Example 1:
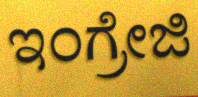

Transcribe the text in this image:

ಇಂಗ್ರೇಜಿ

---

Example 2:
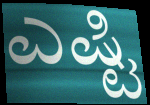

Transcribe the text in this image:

ಎಷ್ಟಿ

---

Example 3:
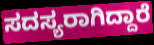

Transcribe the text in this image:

ಸದಸ್ಯರಾಗಿದ್ದಾರೆ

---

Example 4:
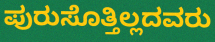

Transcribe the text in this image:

ಪುರುಸೊತ್ತಿಲ್ಲದವರು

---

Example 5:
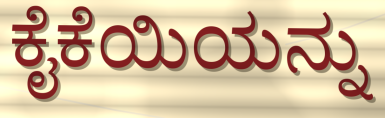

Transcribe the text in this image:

ಕೈಕೆಯಿಯನ್ನು